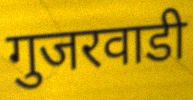
गुजरवाडी